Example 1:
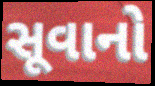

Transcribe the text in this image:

સૂવાનો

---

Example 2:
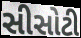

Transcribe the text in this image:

સીસોટી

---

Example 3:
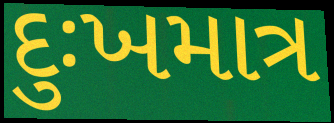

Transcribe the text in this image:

દુઃખમાત્ર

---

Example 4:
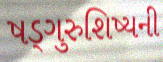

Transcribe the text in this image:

ષડ્ગુરુશિષ્યની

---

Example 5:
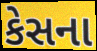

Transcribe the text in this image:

કેસના